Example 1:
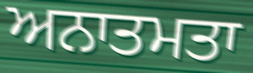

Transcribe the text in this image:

ਅਨਾਤਮਤਾ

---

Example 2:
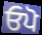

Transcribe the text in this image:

ਓਪੋ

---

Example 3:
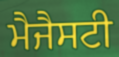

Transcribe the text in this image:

ਮੈਜੈਸਟੀ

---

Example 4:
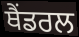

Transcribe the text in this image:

ਥੈਂਡਰਲ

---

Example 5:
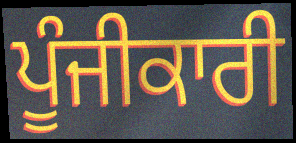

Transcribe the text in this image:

ਪੂੰਜੀਕਾਰੀ